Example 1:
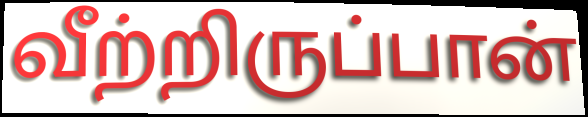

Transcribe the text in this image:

வீற்றிருப்பான்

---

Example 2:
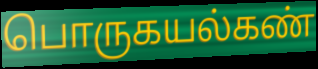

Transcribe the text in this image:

பொருகயல்கண்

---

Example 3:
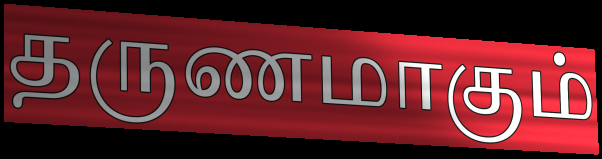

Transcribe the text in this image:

தருணமாகும்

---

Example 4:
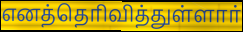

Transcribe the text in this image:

எனத்தெரிவித்துள்ளார்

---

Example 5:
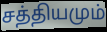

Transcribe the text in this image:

சத்தியமும்